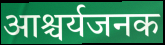
आश्चर्यजनक